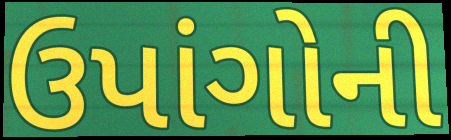
ઉપાંગોની